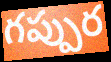
గప్పుర